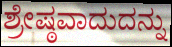
ಶ್ರೇಷ್ಠವಾದುದನ್ನು